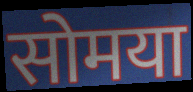
सोमया